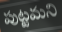
పుట్టమని